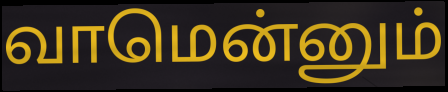
வாமென்னும்